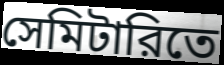
সেমিটারিতে